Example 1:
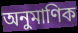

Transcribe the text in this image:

অনুমাণিক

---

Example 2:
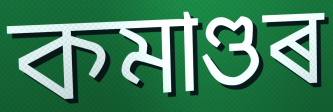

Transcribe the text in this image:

কমাণ্ডৰ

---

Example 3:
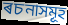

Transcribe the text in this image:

ৰচনাসমূহ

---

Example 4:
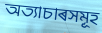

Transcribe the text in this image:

অত্যাচাৰসমূহ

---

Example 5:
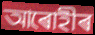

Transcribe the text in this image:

আৰোহীৰ